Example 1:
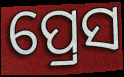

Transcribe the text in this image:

ପ୍ରେସ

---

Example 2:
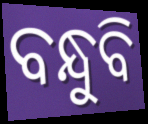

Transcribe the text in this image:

ବନ୍ଧୁବି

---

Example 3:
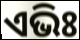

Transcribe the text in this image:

ଏଭିଃ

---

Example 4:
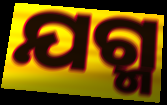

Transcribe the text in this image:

ଯଗ୍ମ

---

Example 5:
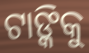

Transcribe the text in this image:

ଟାଙ୍କିକୁ